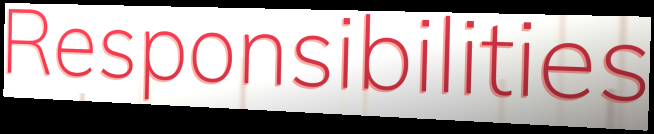
Responsibilities